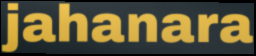
jahanara